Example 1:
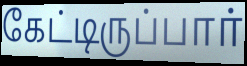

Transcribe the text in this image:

கேட்டிருப்பார்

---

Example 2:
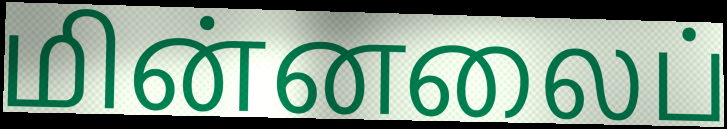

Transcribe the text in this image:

மின்னலைப்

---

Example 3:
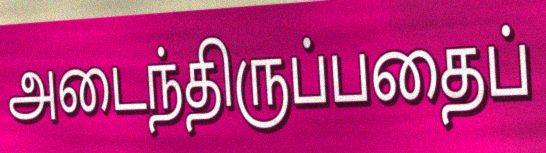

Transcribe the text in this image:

அடைந்திருப்பதைப்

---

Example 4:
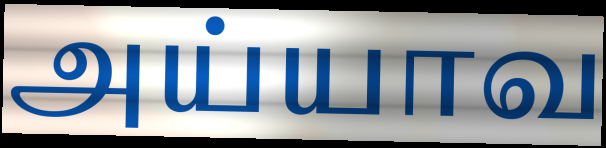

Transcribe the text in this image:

அய்யாவ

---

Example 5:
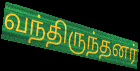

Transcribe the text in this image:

வந்திருந்தனர்